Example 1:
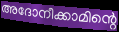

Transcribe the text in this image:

അദോനീക്കാമിന്റെ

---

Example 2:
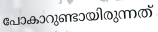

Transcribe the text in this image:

പോകാറുണ്ടായിരുന്നത്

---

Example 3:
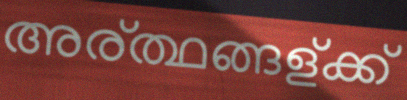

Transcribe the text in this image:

അര്ത്ഥങ്ങള്ക്ക്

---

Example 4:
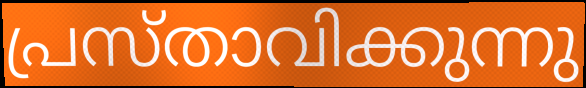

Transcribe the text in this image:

പ്രസ്താവിക്കുന്നു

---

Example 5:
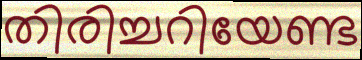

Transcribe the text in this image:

തിരിച്ചറിയേണ്ട